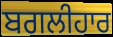
ਬਗਲੀਹਾਰ